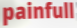
painfull